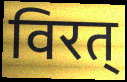
विरत्